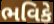
ભવિકે